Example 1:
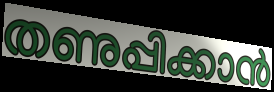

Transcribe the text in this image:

തണുപ്പിക്കാൻ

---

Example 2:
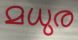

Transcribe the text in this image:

മധുര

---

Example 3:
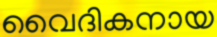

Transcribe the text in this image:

വൈദികനായ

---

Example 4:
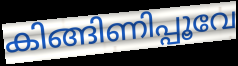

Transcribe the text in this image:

കിങ്ങിണിപ്പൂവേ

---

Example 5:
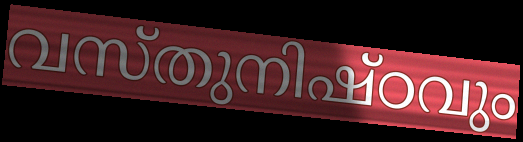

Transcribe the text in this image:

വസ്തുനിഷ്ഠവും